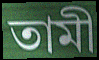
তামী